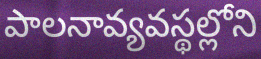
పాలనావ్యవస్థల్లోని